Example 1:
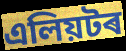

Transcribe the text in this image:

এলিয়টৰ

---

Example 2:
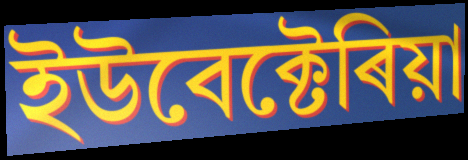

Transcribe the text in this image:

ইউবেক্টেৰিয়া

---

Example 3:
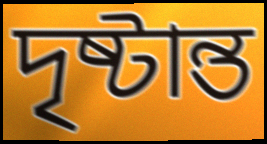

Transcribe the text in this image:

দৃষ্টান্ত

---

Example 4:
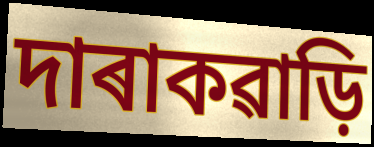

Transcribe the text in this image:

দাৰাকৱাড়ি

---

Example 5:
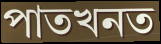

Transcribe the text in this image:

পাতখনত